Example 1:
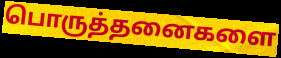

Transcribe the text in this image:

பொருத்தனைகளை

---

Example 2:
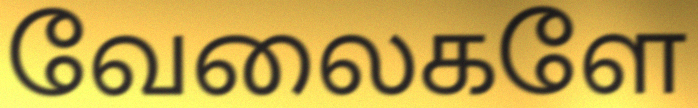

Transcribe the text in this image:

வேலைகளே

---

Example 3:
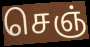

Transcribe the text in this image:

செஞ்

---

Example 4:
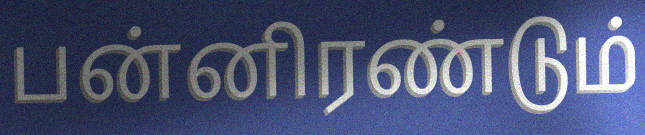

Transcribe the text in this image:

பன்னிரண்டும்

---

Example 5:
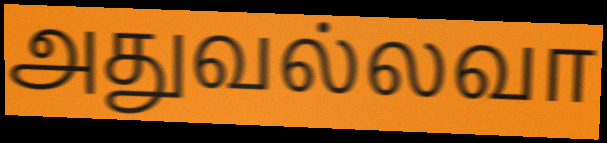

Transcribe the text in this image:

அதுவல்லவா